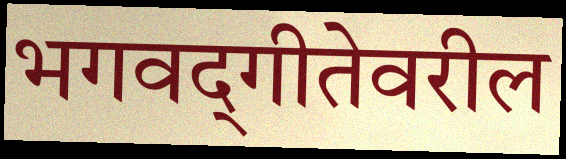
भगवद्‌गीतेवरील